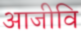
आजीवि